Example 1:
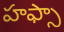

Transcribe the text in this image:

హఫ్సా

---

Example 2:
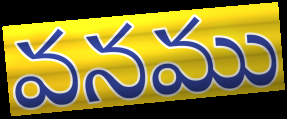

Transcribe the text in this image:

వనము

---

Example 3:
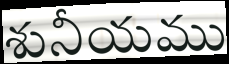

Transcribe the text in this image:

శునీయము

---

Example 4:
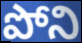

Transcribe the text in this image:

పోని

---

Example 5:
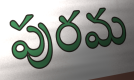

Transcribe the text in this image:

పురమ